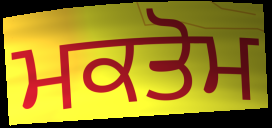
ਮਕਤੋਮ